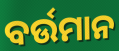
ବର୍ଉମାନ